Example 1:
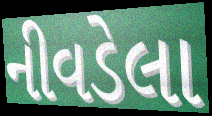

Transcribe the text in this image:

નીવડેલા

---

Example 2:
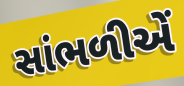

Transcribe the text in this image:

સાંભળીએં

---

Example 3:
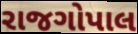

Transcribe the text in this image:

રાજગોપાલ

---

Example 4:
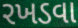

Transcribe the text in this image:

રખડવા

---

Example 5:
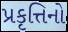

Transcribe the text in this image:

પ્રકૃત્તિનો